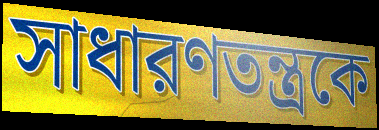
সাধারণতন্ত্রকে